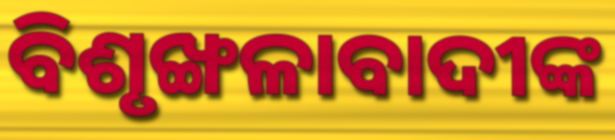
ବିଶୃଙ୍ଖଳାବାଦୀଙ୍କ